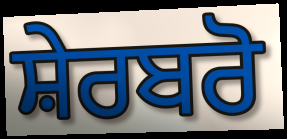
ਸ਼ੇਰਬਰੋ